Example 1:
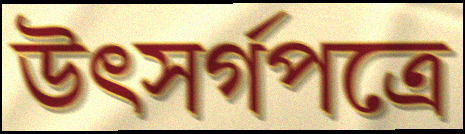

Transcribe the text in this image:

উৎসর্গপত্রে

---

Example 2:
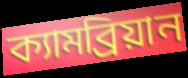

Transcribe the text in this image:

ক্যামব্রিয়ান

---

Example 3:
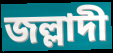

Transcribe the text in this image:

জল্লাদী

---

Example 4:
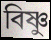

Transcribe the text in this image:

বিষ্ণু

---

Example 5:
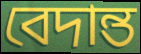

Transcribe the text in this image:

বেদান্ত